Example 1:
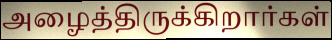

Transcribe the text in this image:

அழைத்திருக்கிறார்கள்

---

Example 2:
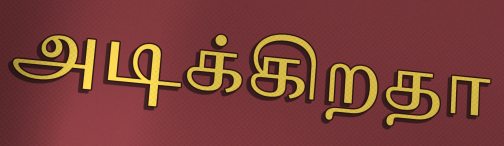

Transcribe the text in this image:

அடிக்கிறதா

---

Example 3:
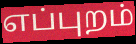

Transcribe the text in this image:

எப்புறம்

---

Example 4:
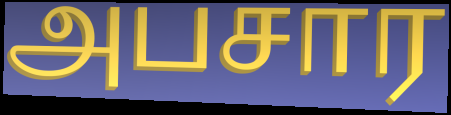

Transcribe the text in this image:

அபசார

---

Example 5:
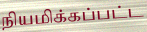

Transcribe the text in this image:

நியமிக்கப்பட்ட